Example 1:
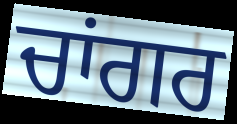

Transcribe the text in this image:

ਚਾਂਗਰ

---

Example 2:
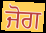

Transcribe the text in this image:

ਜੋਗ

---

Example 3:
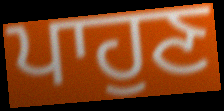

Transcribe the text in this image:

ਪਾਹੁਣ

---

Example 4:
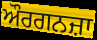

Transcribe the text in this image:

ਔਰਗਨਜ਼ਾ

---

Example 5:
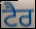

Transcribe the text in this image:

ਟੈਰ